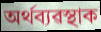
অৰ্থব্যৱস্থাক